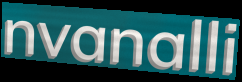
nvanalli